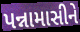
પન્નામાસીને